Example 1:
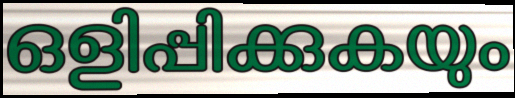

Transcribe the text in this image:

ഒളിപ്പിക്കുകയും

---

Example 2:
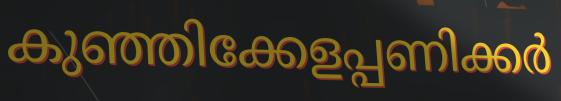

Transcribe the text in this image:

കുഞ്ഞിക്കേളപ്പണിക്കർ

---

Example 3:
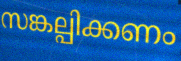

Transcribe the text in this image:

സങ്കല്പിക്കണം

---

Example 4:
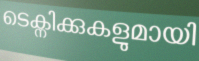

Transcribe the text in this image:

ടെക്നിക്കുകളുമായി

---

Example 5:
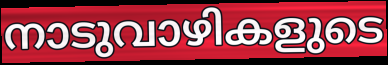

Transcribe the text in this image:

നാടുവാഴികളുടെ